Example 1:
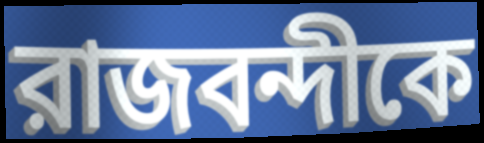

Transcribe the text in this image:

রাজবন্দীকে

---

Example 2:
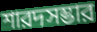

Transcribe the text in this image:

শারদসম্ভার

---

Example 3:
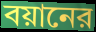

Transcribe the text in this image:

বয়ানের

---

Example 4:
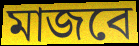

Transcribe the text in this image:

মাজবে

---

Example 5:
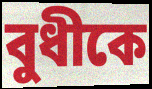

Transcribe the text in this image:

বুধীকে